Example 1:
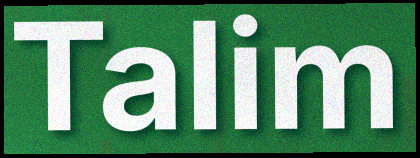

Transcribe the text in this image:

Talim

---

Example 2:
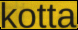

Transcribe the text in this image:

kotta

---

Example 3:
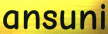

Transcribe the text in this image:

ansuni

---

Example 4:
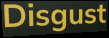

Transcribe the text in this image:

Disgust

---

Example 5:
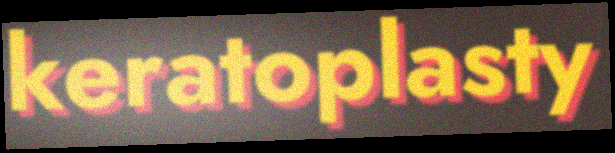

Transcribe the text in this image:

keratoplasty